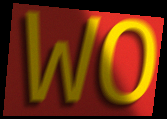
WO